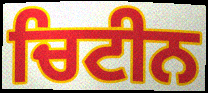
ਚਿਟੀਨ